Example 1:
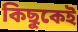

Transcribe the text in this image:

কিছুকেই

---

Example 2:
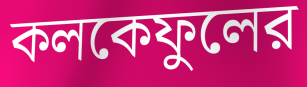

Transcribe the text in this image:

কলকেফুলের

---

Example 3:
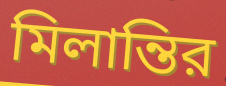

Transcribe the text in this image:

মিলান্তির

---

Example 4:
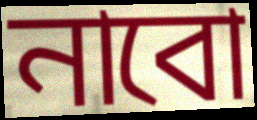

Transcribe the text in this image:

নাবো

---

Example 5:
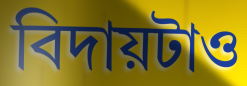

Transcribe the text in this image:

বিদায়টাও